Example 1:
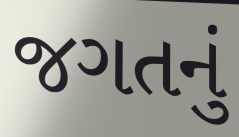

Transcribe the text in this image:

જગતનું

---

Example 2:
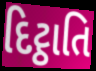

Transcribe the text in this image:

દિટ્ઠાતિ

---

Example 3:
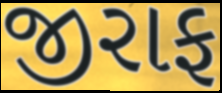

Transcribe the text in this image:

જીરાફ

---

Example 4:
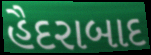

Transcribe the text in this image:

હૈદરાબાદ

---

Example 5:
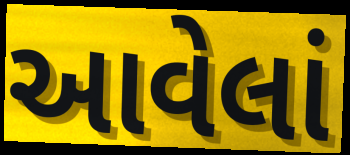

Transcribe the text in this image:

આવેલાં